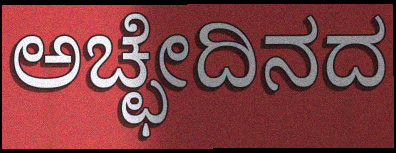
ಅಚ್ಛೇದಿನದ